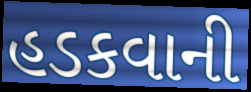
હડકવાની